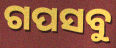
ଗପସବୁ